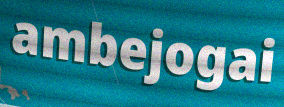
ambejogai